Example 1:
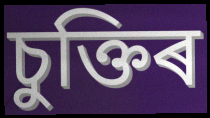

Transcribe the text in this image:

চুক্তিৰ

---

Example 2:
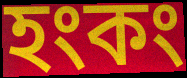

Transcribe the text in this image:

হংকং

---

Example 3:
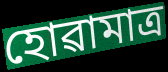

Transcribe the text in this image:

হোৱামাত্ৰ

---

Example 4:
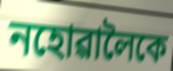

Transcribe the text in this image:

নহোৱালৈকে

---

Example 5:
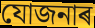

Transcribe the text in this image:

যোজনাৰ